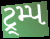
ટ્ર્મ્પ